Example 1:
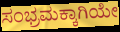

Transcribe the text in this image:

ಸಂಭ್ರಮಕ್ಕಾಗಿಯೇ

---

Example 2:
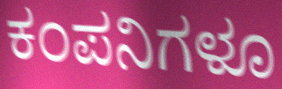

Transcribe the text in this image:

ಕಂಪನಿಗಳೂ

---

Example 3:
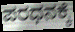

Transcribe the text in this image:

ಪರಧನಕ್ಕೆ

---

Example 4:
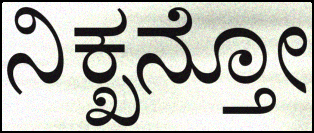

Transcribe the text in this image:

ನಿಕ್ಖನ್ತೋ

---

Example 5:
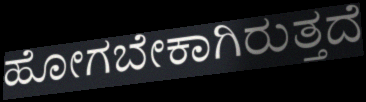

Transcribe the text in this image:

ಹೋಗಬೇಕಾಗಿರುತ್ತದೆ